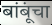
बांबूंचा